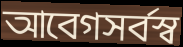
আবেগসর্বস্ব